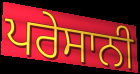
ਪਰੇਸਾਨੀ